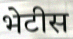
भेटीस